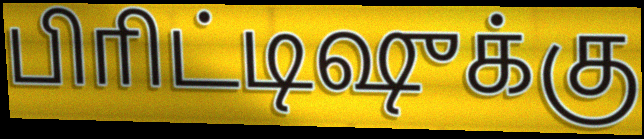
பிரிட்டிஷுக்கு